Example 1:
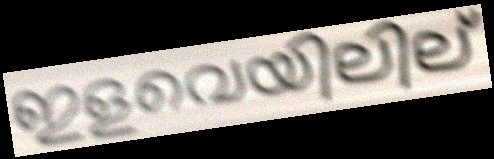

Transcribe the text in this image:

ഇളവെയിലില്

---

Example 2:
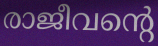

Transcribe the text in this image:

രാജീവന്റെ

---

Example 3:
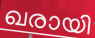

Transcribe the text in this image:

ഖരായി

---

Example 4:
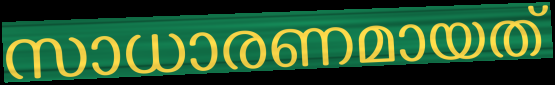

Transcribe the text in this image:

സാധാരണമായത്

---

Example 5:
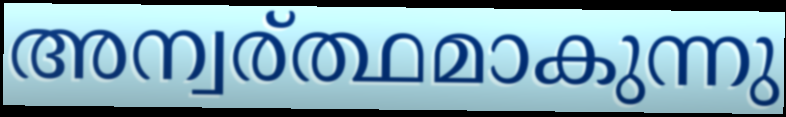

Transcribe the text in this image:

അന്വര്ത്ഥമാകുന്നു